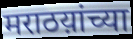
मराठय़ांच्या